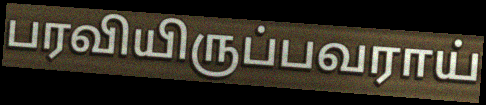
பரவியிருப்பவராய்